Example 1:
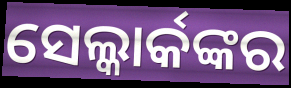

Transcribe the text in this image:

ସେଲ୍କାର୍କଙ୍କର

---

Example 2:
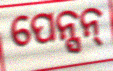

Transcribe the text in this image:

ପେନ୍ସନ୍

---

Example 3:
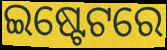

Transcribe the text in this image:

ଇଷ୍ଟେଟରେ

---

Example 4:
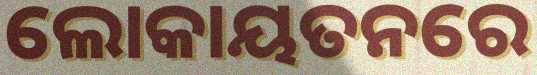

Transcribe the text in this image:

ଲୋକାୟତନରେ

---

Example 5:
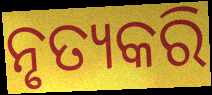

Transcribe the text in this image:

ନୃତ୍ୟକରି